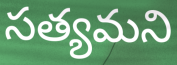
సత్యమని